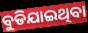
ବୁଡିଯାଇଥିବା